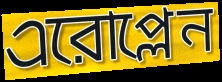
এরোপ্লেন